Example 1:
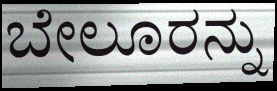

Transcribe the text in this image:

ಬೇಲೂರನ್ನು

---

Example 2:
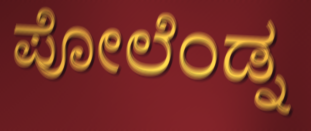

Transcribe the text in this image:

ಪೋಲೆಂಡ್ನ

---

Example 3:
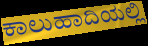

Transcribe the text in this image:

ಕಾಲುಹಾದಿಯಲ್ಲಿ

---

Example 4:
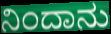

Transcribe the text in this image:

ನಿಂದಾನು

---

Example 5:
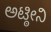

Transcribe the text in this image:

ಅಟ್ಠೀನಿ